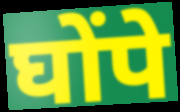
घोंपे